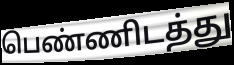
பெண்ணிடத்து